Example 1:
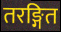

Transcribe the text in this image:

तरङ्गित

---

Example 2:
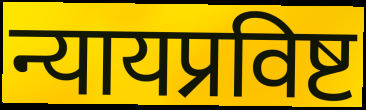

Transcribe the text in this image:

न्यायप्रविष्ट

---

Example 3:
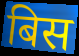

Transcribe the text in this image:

बिस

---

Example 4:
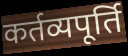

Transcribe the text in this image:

कर्तव्यपूर्ति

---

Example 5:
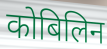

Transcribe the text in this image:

कोबिलिन